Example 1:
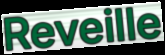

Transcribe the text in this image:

Reveille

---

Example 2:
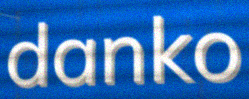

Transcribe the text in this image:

danko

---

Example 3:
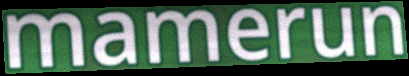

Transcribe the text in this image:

mamerun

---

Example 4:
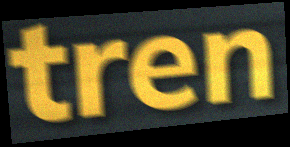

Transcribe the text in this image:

tren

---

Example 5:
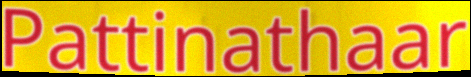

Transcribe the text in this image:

Pattinathaar